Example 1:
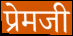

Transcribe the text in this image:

प्रेमजी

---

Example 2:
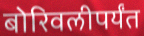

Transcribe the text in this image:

बोरिवलीपर्यंत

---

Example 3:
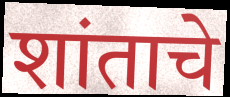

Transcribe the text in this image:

शांताचे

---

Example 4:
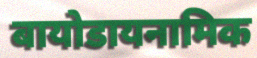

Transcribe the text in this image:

बायोडायनामिक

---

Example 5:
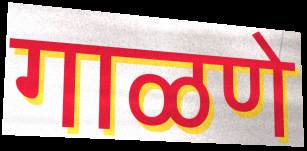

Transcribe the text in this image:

गाळणे